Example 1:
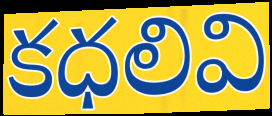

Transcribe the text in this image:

కధలివి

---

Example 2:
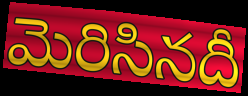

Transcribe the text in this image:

మెరిసినదీ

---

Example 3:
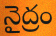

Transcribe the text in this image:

నైద్రం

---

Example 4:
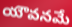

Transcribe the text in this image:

యౌవనమే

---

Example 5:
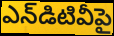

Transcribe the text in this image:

ఎన్‌డిటివీపై